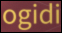
ogidi